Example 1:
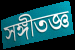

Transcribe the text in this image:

সঙ্গীতজ্ঞ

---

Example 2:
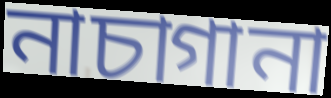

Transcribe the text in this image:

নাচাগানা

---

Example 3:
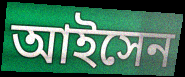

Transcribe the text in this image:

আইসেন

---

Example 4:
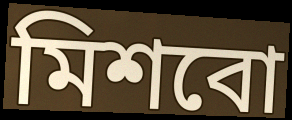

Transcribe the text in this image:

মিশবো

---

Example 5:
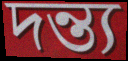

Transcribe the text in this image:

দন্ত্য